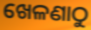
ଖେଳଣାଠୁ